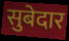
सुबेदार